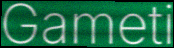
Gameti